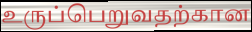
உருப்பெறுவதற்கான